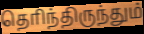
தெரிந்திருந்தும்